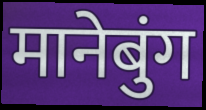
मानेबुंग